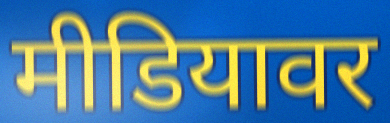
मीडियावर